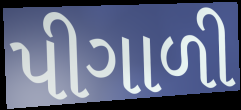
પીગાળી